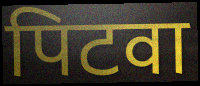
पिटवा